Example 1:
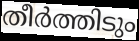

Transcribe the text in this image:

തീർത്തിടും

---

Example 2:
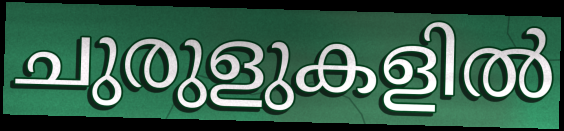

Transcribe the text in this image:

ചുരുളുകളിൽ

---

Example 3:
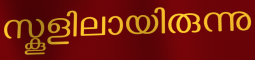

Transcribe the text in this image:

സ്കൂളിലായിരുന്നു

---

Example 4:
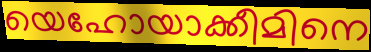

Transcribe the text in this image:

യെഹോയാക്കീമിനെ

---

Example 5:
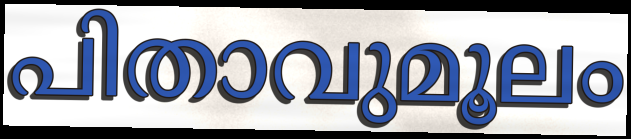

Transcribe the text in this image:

പിതാവുമൂലം